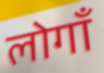
लोगाँ